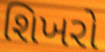
શિખરો